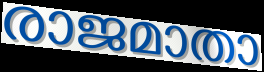
രാജമാതാ